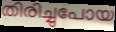
തിരിച്ചുപോയ